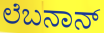
ಲೆಬನಾನ್